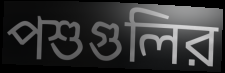
পশুগুলির